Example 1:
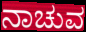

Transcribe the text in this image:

ನಾಚುವ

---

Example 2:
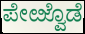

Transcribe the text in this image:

ಪೇೞ್ವೊಡೆ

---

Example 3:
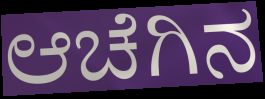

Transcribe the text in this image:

ಆಚೆಗಿನ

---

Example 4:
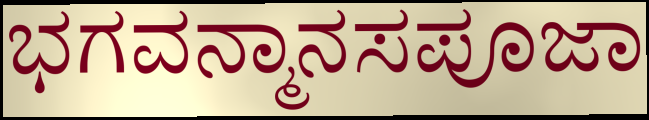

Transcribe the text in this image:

ಭಗವನ್ಮಾನಸಪೂಜಾ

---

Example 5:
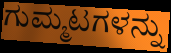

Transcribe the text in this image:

ಗುಮ್ಮಟಗಳನ್ನು